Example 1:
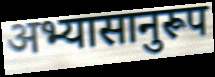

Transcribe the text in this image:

अभ्यासानुरूप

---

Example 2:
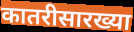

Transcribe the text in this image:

कातरीसारख्या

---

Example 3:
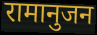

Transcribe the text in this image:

रामानुजन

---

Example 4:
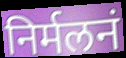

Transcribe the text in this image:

निर्मलनं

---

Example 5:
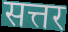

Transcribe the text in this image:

सत्तर